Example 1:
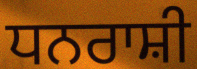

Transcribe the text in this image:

ਧਨਰਾਸ਼ੀ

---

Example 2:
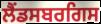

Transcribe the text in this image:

ਲੈਂਡਸਬਰਗਿਸ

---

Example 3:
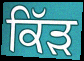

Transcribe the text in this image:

ਕਿੱੜ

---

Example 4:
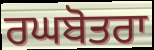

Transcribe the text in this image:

ਰਘਬੋਤਰਾ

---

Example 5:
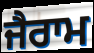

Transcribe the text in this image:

ਜੈਰਾਮ